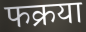
फक्रया